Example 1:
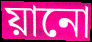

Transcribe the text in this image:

য়ানো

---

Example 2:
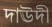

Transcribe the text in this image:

দাঊদী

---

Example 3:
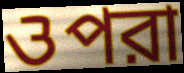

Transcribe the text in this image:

ওপরা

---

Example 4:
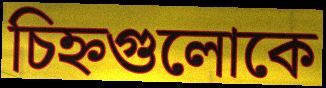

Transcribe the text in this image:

চিহ্নগুলোকে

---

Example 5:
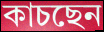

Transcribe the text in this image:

কাচছেন